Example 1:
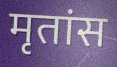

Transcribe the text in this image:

मृतांस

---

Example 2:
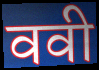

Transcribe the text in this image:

ववी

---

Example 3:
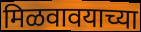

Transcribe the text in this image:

मिळवावयाच्या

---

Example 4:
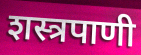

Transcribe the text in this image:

शस्त्रपाणी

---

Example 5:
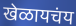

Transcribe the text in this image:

खेळायचंय